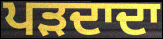
ਪੜਦਾਦਾ